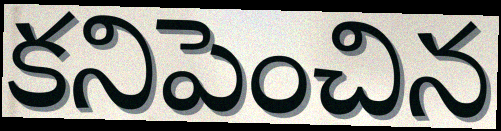
కనిపెంచిన